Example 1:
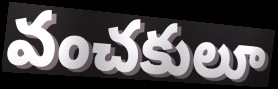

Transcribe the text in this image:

వంచకులూ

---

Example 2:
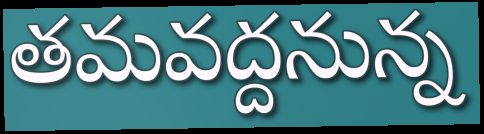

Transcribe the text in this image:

తమవద్దనున్న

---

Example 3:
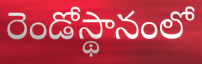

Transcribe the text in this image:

రెండోస్థానంలో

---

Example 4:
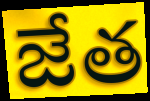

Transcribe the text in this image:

జేత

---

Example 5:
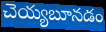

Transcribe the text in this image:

చెయ్యబూనడం